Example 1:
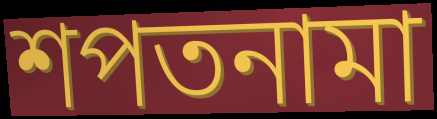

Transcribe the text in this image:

শপতনামা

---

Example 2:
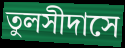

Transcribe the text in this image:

তুলসীদাসে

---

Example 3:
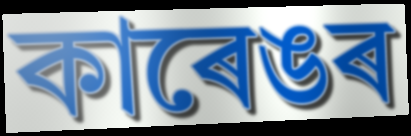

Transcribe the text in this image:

কাৰেঙৰ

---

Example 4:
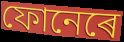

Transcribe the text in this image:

ফোনেৰে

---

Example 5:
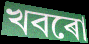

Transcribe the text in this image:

খবৰো